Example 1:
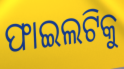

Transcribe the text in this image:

ଫାଇଲଟିକୁ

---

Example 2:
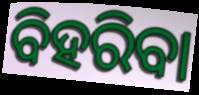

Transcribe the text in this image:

ବିହରିବା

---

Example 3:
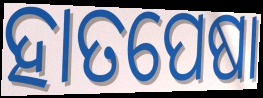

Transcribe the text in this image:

ହାତପେଷା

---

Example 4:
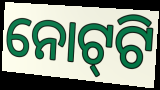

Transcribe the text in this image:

ନୋଟ୍‌ଟି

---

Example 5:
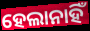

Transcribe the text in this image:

ହେଲାନାହିଁ